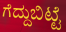
ಗೆದ್ದುಬಿಟ್ಟೆ